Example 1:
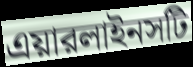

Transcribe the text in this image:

এয়ারলাইনসটি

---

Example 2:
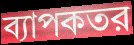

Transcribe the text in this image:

ব্যাপকতর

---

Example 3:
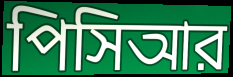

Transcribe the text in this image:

পিসিআর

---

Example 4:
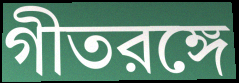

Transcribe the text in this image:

গীতরঙ্গে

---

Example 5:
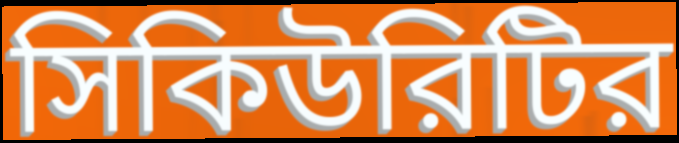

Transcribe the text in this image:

সিকিউরিটির